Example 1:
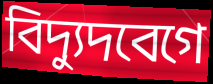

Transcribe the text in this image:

বিদ্যুদবেগে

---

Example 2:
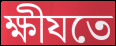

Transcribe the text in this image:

ক্ষীযতে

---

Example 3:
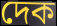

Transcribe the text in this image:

দেক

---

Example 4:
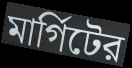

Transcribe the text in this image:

মার্গিটের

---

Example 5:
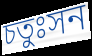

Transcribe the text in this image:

চতুঃসন